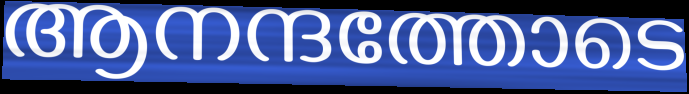
ആനന്ദത്തോടെ